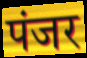
पंजर